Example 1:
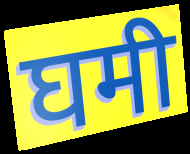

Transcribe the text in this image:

घमी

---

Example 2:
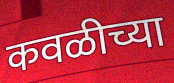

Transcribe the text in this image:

कवळीच्या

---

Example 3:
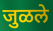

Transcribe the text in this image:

जुळले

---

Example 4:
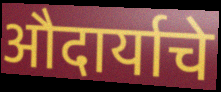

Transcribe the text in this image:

औदार्याचे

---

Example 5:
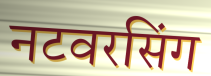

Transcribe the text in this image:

नटवरसिंग